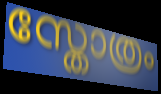
സ്തോത്രം